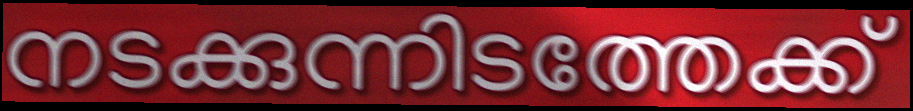
നടക്കുന്നിടത്തേക്ക്